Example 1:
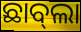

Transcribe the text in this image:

ଛାବ୍‍ଲା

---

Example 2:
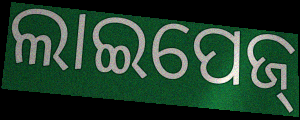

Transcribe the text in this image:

ଲାଇପେଜ୍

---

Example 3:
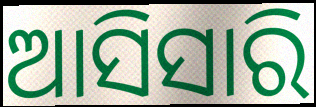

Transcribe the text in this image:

ଆସିସାରି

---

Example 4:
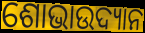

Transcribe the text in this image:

ଶୋଭାଉଦ୍ୟାନ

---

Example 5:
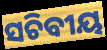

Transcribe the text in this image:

ସଚିବୀୟ